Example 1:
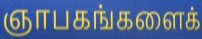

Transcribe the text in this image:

ஞாபகங்களைக்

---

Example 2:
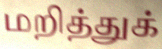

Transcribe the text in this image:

மறித்துக்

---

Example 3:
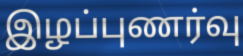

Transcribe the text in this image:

இழப்புணர்வு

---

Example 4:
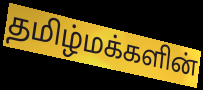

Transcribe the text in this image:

தமிழ்மக்களின்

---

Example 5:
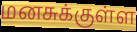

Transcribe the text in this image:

மனசுக்குள்ள